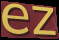
ez